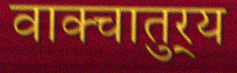
वाक्चातुर्य